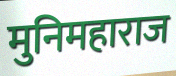
मुनिमहाराज